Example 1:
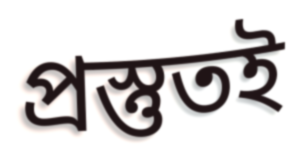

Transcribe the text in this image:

প্রস্তুতই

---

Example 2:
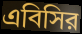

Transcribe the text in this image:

এবিসির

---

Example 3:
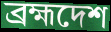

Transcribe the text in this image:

ব্রহ্মদেশ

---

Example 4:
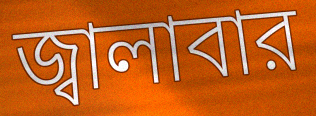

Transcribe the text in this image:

জ্বালাবার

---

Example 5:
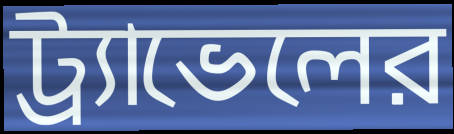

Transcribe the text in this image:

ট্র্যাভেলের